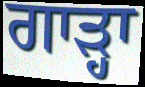
ਗਾੜ੍ਹਾ